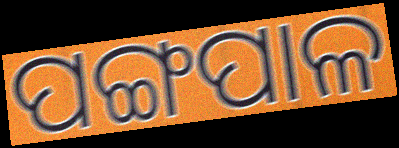
ପଙ୍ଗପାଳ